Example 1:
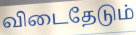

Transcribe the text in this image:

விடைதேடும்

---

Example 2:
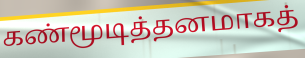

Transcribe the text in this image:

கண்மூடித்தனமாகத்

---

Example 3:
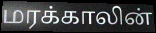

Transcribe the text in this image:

மரக்காலின்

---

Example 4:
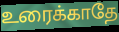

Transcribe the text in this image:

உரைக்காதே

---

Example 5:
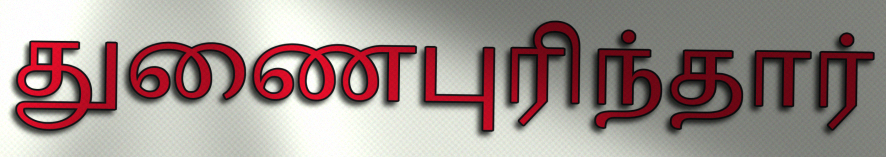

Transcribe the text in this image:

துணைபுரிந்தார்